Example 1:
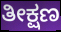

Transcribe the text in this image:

ತೀಕ್ಷಣ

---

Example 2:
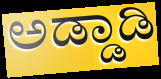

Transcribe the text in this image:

ಅಡ್ಡಾಡಿ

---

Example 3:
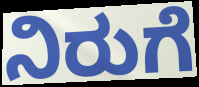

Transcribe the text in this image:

ನಿರುಗೆ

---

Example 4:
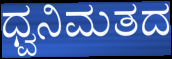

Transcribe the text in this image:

ಧ್ವನಿಮತದ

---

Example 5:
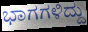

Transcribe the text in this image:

ಭಾಗಗಳಿದ್ದು